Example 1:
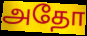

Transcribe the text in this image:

அதோ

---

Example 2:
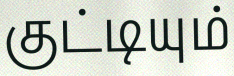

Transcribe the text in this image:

குட்டியும்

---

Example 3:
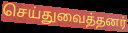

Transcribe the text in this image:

செய்துவைத்தனர்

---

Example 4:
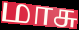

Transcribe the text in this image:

மாசு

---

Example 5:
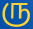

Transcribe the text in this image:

ரு